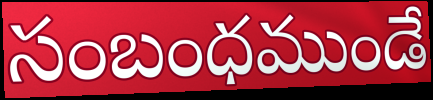
సంబంధముండే